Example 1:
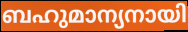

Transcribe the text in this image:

ബഹുമാന്യനായി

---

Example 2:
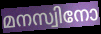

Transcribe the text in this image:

മനസ്വിനോ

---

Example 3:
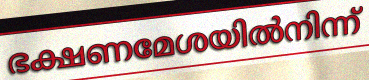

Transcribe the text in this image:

ഭക്ഷണമേശയിൽനിന്ന്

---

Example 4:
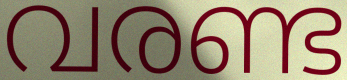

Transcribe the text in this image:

വരണ്ട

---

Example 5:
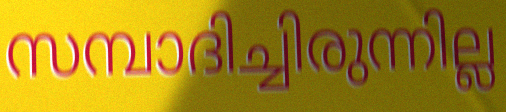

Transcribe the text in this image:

സമ്പാദിച്ചിരുന്നില്ല